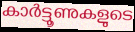
കാർട്ടൂണുകളുടെ